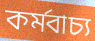
কৰ্মবাচ্য